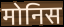
मोनिस